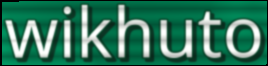
wikhuto